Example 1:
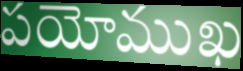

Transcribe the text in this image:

పయోముఖ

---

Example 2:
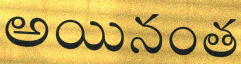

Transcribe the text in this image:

అయినంత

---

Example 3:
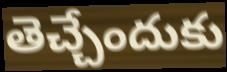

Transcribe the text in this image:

తెచ్చేందుకు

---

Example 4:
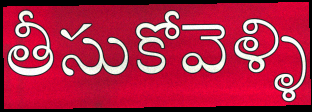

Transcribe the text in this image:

తీసుకోవెళ్ళి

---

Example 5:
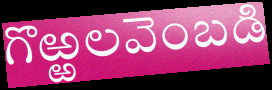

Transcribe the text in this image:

గొఱ్ఱలవెంబడి